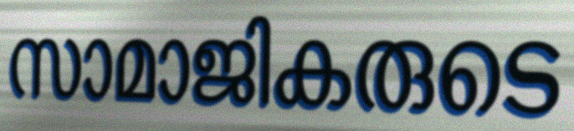
സാമാജികരുടെ